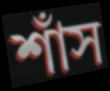
শাঁস